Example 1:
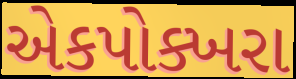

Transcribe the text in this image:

એકપોક્ખરા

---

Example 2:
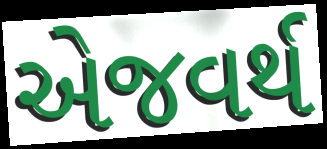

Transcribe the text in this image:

એજવર્થ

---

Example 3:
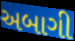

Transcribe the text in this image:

અબાગી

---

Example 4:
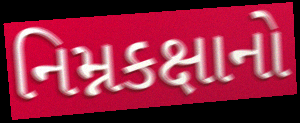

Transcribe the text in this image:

નિમ્નકક્ષાનો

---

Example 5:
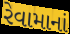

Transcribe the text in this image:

રેવામાનાં